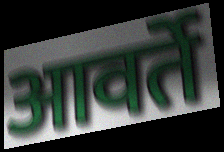
आवर्ते